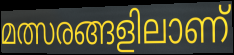
മത്സരങ്ങളിലാണ്